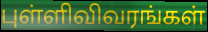
புள்ளிவிவரங்கள்